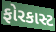
ફોરકાસ્ટ